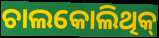
ଚାଲକୋଲିଥିକ୍